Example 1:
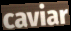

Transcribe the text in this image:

caviar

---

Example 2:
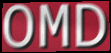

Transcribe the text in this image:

OMD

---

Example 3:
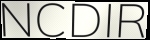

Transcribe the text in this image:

NCDIR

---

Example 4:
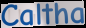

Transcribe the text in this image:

Caltha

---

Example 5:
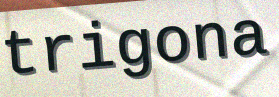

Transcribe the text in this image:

trigona